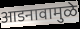
आडनावामुळे